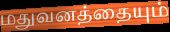
மதுவனத்தையும்